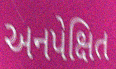
અનપેક્ષિત